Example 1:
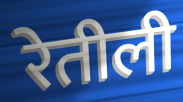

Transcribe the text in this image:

रेतीली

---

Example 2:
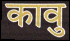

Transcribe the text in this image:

कावु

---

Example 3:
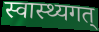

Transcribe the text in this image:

स्वास्थ्यगत्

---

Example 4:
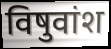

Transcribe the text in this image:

विषुवांश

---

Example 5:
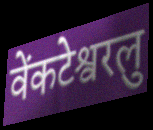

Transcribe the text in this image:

वेंकटेश्वरलु